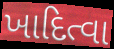
ખાદિત્વા